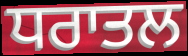
ਧਰਾਤਲ